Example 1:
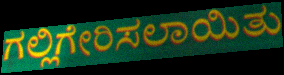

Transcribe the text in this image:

ಗಲ್ಲಿಗೇರಿಸಲಾಯಿತು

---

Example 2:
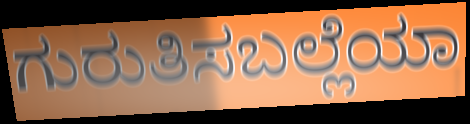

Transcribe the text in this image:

ಗುರುತಿಸಬಲ್ಲೆಯಾ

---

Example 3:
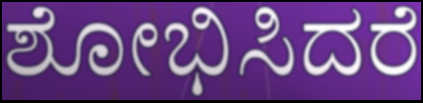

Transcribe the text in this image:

ಶೋಭಿಸಿದರೆ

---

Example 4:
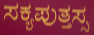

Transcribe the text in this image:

ಸಕ್ಯಪುತ್ತಸ್ಸ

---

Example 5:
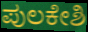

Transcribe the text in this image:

ಪುಲಕೇಶಿ